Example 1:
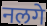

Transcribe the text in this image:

नलगे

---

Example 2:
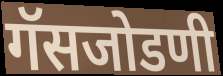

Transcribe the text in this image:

गॅसजोडणी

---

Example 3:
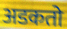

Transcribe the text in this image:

अडकतो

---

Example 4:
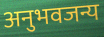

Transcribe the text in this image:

अनुभवजन्य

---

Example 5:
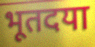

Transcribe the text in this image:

भूतदया